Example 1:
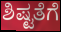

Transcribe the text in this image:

ಶಿಷ್ಟತೆಗೆ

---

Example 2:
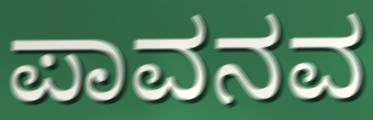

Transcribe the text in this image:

ಪಾವನವ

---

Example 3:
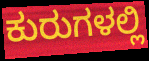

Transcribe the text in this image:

ಕುರುಗಳಲ್ಲಿ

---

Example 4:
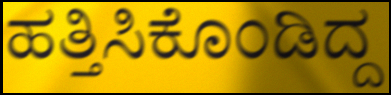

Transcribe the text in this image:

ಹತ್ತಿಸಿಕೊಂಡಿದ್ದ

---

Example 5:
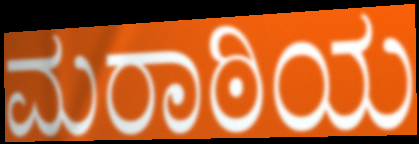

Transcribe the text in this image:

ಮರಾಠಿಯ